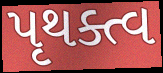
પૃથક્ત્વ